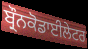
ਬ੍ਰੌਨਕੋਡਾਈਲੇਟਰ